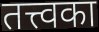
तत्त्वका